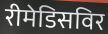
रीमेडिसविर